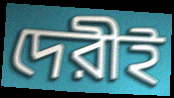
দেরীই